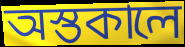
অস্তকালে